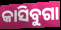
କାସିବୁଗା